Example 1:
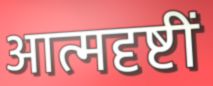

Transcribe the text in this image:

आत्मदृष्टीं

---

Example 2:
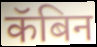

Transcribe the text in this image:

कॅबिन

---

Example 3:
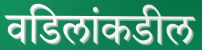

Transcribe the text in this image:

वडिलांकडील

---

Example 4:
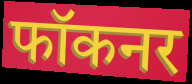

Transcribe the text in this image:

फॉकनर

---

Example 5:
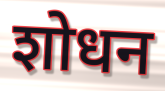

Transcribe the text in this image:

शोधन